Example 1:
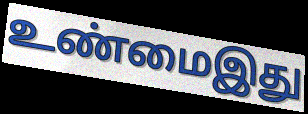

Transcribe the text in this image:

உண்மைஇது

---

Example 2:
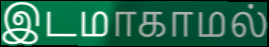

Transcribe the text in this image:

இடமாகாமல்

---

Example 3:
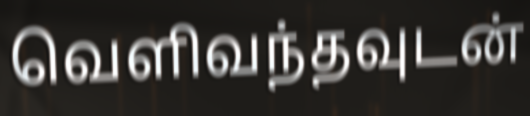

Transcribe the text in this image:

வெளிவந்தவுடன்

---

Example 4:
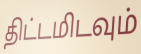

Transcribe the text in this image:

திட்டமிடவும்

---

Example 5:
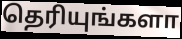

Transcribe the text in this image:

தெரியுங்களா